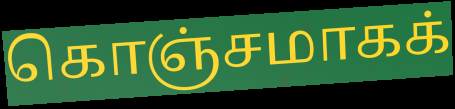
கொஞ்சமாகக்